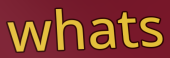
whats